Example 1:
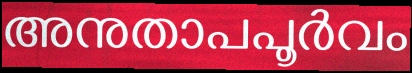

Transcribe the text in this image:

അനുതാപപൂർവം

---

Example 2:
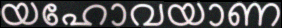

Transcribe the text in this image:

യഹോവയാണ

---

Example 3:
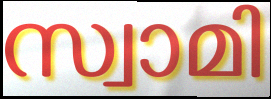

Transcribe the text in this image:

സ്വാമി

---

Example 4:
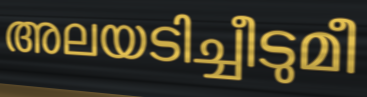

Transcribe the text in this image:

അലയടിച്ചീടുമീ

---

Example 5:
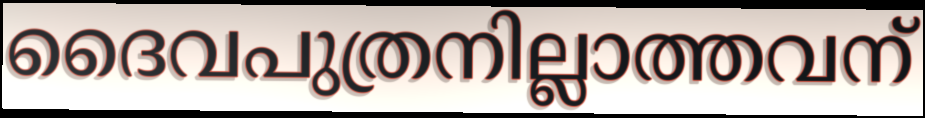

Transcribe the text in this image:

ദൈവപുത്രനില്ലാത്തവന്